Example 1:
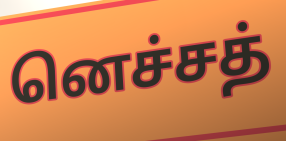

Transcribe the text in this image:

னெச்சத்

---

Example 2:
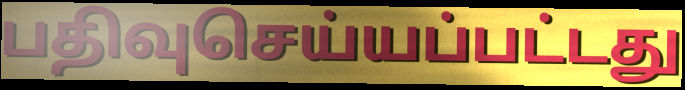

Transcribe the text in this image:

பதிவுசெய்யப்பட்டது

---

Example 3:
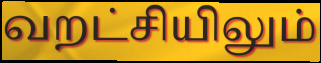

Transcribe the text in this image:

வறட்சியிலும்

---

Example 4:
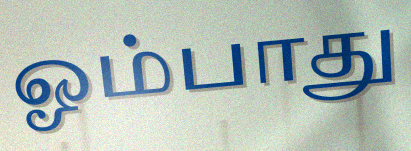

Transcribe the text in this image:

ஓம்பாது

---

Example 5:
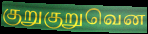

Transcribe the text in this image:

குறுகுறுவென